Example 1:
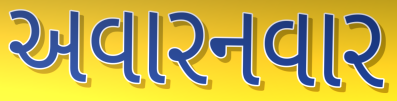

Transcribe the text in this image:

અવારનવાર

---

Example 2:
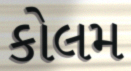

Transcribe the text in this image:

કોલમ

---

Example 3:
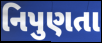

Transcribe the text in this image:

નિપુણતા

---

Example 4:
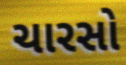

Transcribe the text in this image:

ચારસો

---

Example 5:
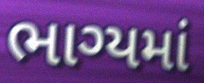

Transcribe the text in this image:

ભાગ્યમાં